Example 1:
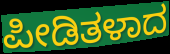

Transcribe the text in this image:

ಪೀಡಿತಳಾದ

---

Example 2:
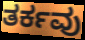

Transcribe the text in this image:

ತರ್ಕವು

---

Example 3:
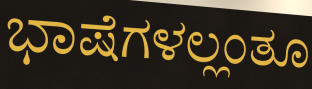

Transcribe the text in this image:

ಭಾಷೆಗಳಲ್ಲಂತೂ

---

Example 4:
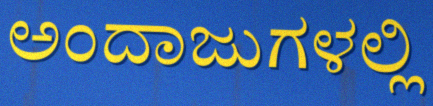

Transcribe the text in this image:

ಅಂದಾಜುಗಳಲ್ಲಿ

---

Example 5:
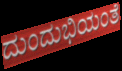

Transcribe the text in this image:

ದುಂದುಭಿಯಂತೆ